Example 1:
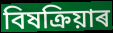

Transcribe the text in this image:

বিষক্ৰিয়াৰ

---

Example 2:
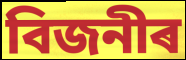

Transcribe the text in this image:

বিজনীৰ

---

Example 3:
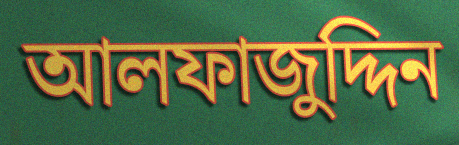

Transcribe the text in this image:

আলফাজুদ্দিন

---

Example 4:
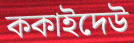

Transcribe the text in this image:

ককাইদেউ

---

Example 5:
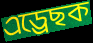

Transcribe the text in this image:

এড্ৰেছক